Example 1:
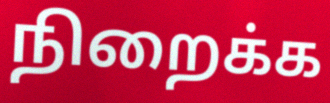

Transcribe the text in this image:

நிறைக்க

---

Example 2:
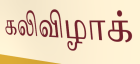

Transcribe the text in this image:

கலிவிழாக்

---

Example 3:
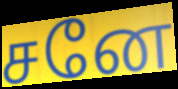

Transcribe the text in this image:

சனே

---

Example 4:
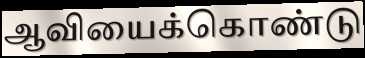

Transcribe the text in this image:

ஆவியைக்கொண்டு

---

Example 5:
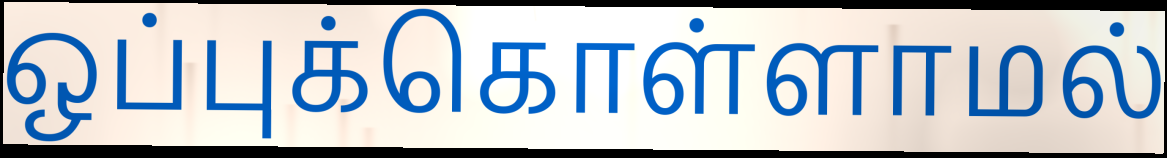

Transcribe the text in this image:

ஒப்புக்கொள்ளாமல்